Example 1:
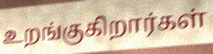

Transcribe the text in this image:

உறங்குகிறார்கள்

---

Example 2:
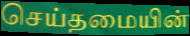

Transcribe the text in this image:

செய்தமையின்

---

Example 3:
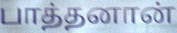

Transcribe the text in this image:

பாத்தனான்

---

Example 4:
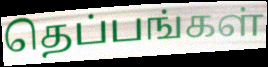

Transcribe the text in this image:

தெப்பங்கள்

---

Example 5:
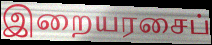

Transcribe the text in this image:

இறையரசைப்